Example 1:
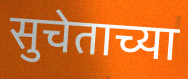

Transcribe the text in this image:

सुचेताच्या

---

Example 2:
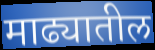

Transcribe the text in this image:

माढ्यातील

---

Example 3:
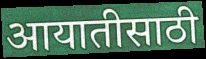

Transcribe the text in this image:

आयातीसाठी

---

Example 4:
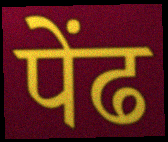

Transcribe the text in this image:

पेंढ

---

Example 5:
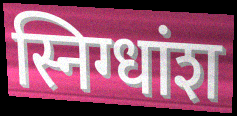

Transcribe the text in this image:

स्निग्धांश